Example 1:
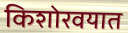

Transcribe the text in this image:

किशोरवयात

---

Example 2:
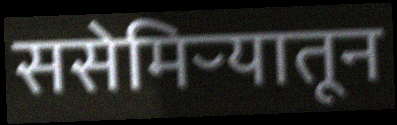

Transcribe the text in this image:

ससेमिऱ्यातून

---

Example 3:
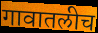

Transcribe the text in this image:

गावातलीच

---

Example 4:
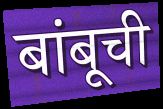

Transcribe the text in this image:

बांबूची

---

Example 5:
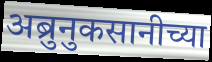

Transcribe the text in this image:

अब्रुनुकसानीच्या